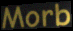
Morb